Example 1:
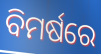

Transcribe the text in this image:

ବିମର୍ଷରେ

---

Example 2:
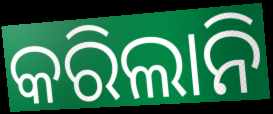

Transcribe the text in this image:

କରିଲାନି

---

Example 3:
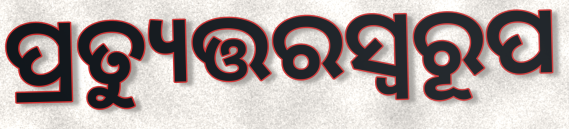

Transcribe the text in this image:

ପ୍ରତ୍ୟୁତ୍ତରସ୍ଵରୂପ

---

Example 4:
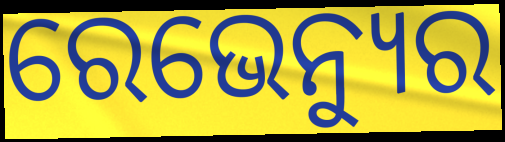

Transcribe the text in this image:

ରେଭେନ୍ୟୁର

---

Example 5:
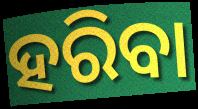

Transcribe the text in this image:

ହରିବା